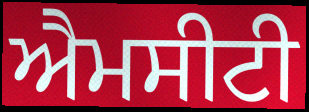
ਐਮਸੀਟੀ